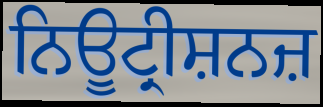
ਨਿਊਟ੍ਰੀਸ਼ਨਜ਼